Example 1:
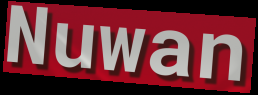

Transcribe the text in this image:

Nuwan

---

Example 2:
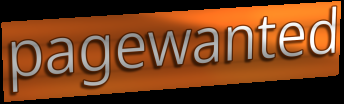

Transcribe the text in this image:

pagewanted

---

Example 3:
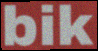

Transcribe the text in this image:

bik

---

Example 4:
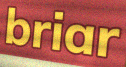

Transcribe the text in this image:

briar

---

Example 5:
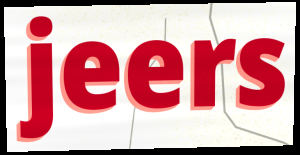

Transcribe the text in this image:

jeers